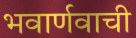
भवार्णवाची